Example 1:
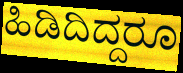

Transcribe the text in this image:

ಹಿಡಿದಿದ್ದರೂ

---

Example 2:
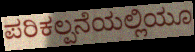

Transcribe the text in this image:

ಪರಿಕಲ್ಪನೆಯಲ್ಲಿಯೂ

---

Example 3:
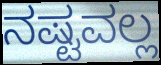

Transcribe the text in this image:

ನಷ್ಟವಲ್ಲ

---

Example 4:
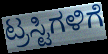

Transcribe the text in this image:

ಟ್ರಸ್ಟಿಗಳಿಗೆ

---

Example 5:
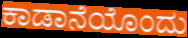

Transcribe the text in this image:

ಕಾಡಾನೆಯೊಂದು